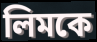
লিমকে